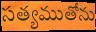
సత్యముతోను